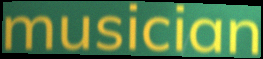
musician